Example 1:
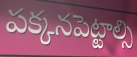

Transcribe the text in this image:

పక్కనపెట్టాల్సి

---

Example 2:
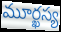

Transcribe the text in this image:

మూర్ఖస్య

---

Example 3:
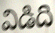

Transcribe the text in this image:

విడిది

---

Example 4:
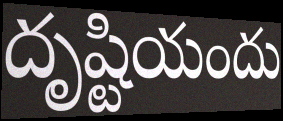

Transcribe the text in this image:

దృష్టియందు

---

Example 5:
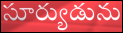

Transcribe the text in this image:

సూర్యుడును